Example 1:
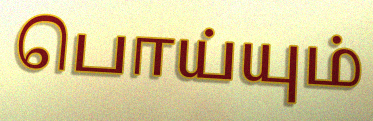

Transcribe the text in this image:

பொய்யும்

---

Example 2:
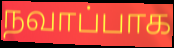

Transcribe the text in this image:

நவாப்பாக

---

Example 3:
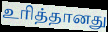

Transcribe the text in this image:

உரித்தானது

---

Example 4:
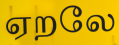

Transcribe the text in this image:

ஏறலே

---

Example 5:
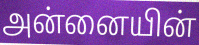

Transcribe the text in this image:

அன்னையின்